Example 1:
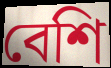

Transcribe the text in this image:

বেশি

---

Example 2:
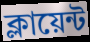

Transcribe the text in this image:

ক্লায়েন্ট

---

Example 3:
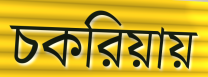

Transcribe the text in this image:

চকরিয়ায়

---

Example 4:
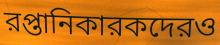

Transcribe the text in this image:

রপ্তানিকারকদেরও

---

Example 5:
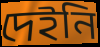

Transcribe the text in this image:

দেইনি